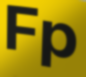
Fp